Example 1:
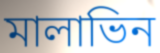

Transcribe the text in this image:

মালাভিন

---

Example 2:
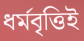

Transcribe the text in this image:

ধর্মবৃত্তিই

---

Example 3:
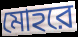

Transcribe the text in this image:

মোহরে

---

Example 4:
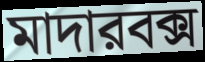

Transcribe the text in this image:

মাদারবক্স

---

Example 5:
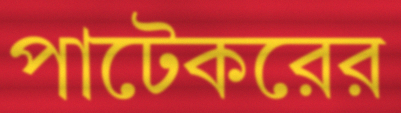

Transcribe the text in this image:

পাটেকরের